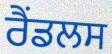
ਰੈਂਡਲਸ